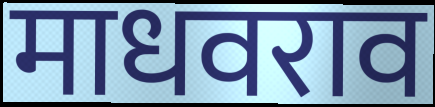
माधवराव